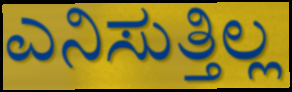
ಎನಿಸುತ್ತಿಲ್ಲ